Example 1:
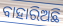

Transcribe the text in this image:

ବାହାରିଅଛି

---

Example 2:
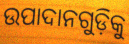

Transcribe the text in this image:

ଉପାଦାନଗୁଡ଼ିକୁ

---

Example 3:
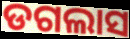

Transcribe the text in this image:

ଡଗଲାସ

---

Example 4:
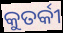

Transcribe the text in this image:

କୁତର୍କୀ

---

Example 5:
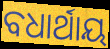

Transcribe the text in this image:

ବଧାର୍ଥାୟ